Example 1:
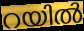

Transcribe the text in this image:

റയിൽ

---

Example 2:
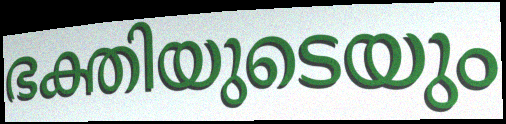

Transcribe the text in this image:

ഭക്തിയുടെയും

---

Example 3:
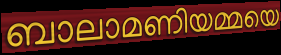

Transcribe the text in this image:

ബാലാമണിയമ്മയെ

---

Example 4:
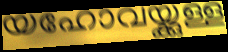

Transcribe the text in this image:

യഹോവയ്ക്കുള്ള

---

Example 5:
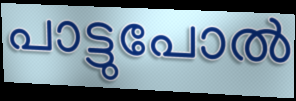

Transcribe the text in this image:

പാട്ടുപോൽ